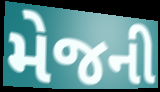
મેજની